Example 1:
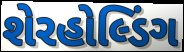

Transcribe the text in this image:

શેરહોલ્ડિંગ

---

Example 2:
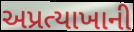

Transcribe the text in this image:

અપ્રત્યાખાની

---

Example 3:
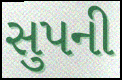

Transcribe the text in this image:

સુપની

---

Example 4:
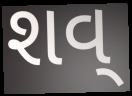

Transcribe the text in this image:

શવ્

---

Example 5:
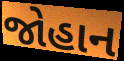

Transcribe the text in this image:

જોહાન